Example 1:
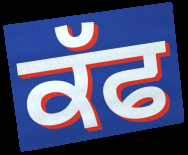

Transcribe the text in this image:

ਕੱਫ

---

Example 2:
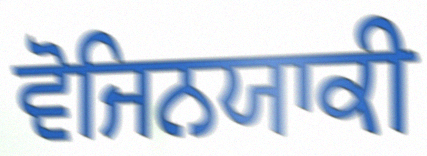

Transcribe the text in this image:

ਵੋਜਿਨਯਾਕੀ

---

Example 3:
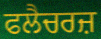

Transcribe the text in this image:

ਫਲੈਚਰਜ਼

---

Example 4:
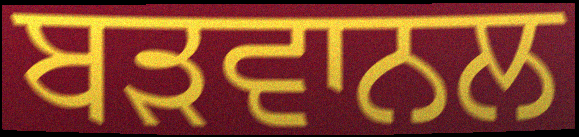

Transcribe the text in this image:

ਬੜਵਾਨਲ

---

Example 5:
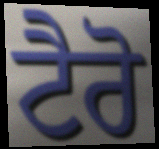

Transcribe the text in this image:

ਟੈਰੋ